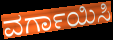
ವರ್ಗಾಯಿಸಿ